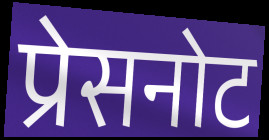
प्रेसनोट